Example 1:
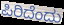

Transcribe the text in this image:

ಪಿರಿದೆಂದು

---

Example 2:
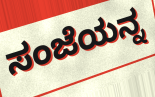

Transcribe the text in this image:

ಸಂಜೆಯನ್ನ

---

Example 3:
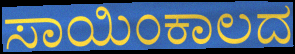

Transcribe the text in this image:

ಸಾಯಿಂಕಾಲದ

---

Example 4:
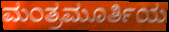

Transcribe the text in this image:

ಮಂತ್ರಮೂರ್ತಿಯ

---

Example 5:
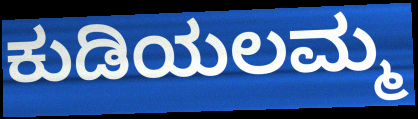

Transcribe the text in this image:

ಕುಡಿಯಲಮ್ಮ